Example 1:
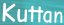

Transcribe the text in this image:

Kuttan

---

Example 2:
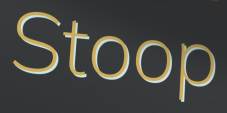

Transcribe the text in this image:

Stoop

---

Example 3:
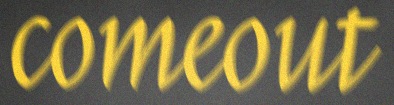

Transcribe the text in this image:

comeout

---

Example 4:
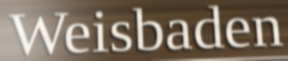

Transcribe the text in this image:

Weisbaden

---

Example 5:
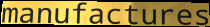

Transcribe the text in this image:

manufactures